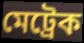
মেট্রেক